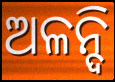
ଅଳନ୍ଦି